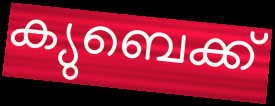
ക്യുബെക്ക്